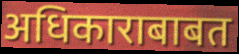
अधिकाराबाबत